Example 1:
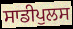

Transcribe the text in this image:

ਸਾਡੀਪੁਲਸ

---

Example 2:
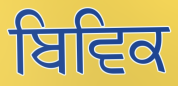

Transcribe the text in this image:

ਬਿਵਿਕ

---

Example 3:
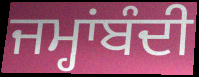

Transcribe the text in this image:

ਜਮ੍ਹਾਂਬੰਦੀ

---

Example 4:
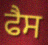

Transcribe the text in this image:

ਫੈਸ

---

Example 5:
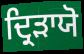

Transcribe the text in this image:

ਦ੍ਰਿੜਾਯੋ